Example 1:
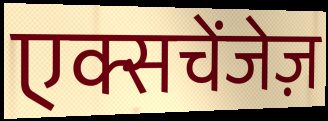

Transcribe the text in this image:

एक्सचेंजेज़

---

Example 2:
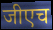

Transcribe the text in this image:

जीएच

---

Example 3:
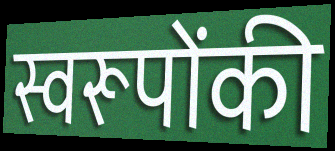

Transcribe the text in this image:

स्वरूपोंकी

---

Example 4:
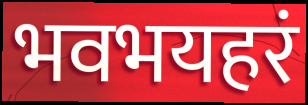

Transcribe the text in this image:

भवभयहरं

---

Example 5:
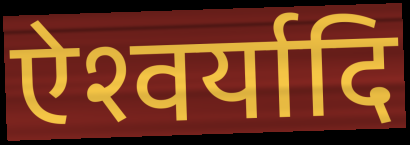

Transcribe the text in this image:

ऐश्वर्यादि